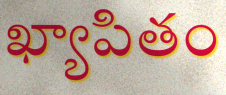
ఖ్యాపితం